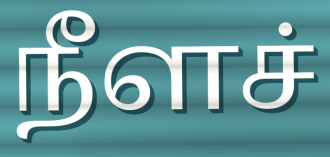
நீளச்